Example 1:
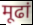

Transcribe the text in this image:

मूढां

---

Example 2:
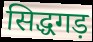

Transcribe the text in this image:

सिद्धगड़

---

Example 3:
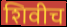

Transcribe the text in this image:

शिवीच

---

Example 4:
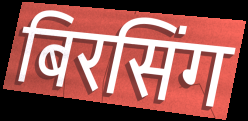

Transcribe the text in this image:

बिरसिंग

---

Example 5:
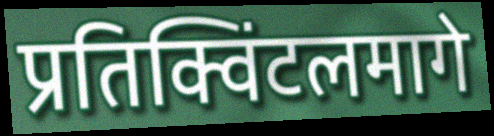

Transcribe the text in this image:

प्रतिक्विंटलमागे